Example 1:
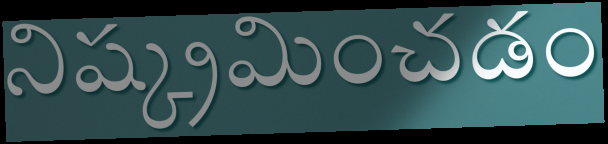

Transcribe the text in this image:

నిష్క్రమించడం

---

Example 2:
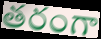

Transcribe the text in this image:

తరంగా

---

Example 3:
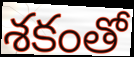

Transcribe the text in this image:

శకంతో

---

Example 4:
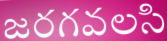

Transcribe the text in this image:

జరగవలసి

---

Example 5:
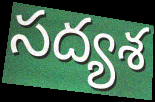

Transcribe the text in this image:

సద్యశ